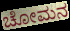
ಚೋಮನ